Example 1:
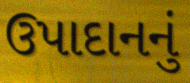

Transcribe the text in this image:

ઉપાદાનનું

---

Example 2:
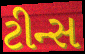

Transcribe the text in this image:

ટીન્સ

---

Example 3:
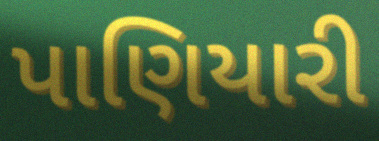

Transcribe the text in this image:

પાણિયારી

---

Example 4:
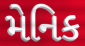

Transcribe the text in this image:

મેનિક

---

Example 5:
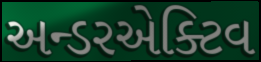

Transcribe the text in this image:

અન્ડરએક્ટિવ